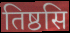
तिष्ठसि